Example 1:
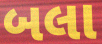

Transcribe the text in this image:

બલા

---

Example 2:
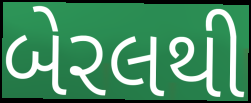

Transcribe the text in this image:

બેરલથી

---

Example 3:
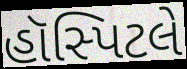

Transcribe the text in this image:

હૉસ્પિટલે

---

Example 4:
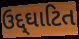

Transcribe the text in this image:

ઉદ્દ્ઘાટિત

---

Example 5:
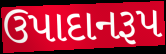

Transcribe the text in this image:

ઉપાદાનરૂપ